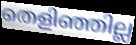
തെളിഞ്ഞില്ല